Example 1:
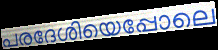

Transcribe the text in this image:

പരദേശിയെപ്പോലെ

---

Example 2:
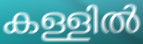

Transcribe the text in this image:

കള്ളിൽ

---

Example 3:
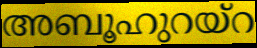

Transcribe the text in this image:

അബൂഹുറയ്റ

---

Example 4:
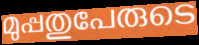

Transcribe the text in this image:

മുപ്പതുപേരുടെ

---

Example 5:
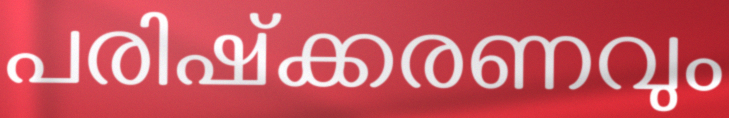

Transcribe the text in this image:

പരിഷ്ക്കരണവും